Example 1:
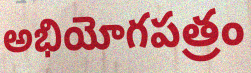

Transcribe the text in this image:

అభియోగపత్రం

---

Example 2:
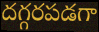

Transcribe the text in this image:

దగ్గరపడగా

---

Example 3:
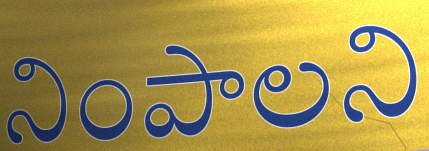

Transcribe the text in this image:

నింపాలని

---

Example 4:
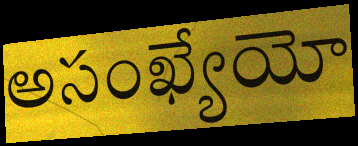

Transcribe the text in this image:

అసంఖ్యేయో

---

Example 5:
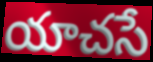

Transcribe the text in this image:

యాచసే